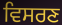
ਵਿਸਰਣ